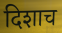
दिशाच